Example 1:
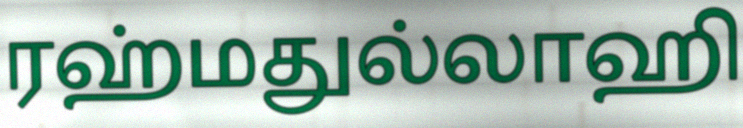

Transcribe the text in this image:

ரஹ்மதுல்லாஹி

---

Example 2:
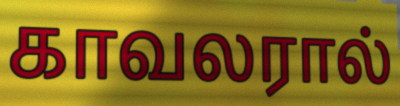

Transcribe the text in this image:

காவலரால்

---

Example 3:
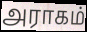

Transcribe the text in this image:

அராகம்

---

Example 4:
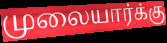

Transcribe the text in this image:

முலையார்க்கு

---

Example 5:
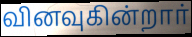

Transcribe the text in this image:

வினவுகின்றார்